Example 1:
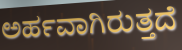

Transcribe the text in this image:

ಅರ್ಹವಾಗಿರುತ್ತದೆ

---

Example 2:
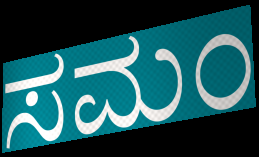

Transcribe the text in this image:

ಸಮಂ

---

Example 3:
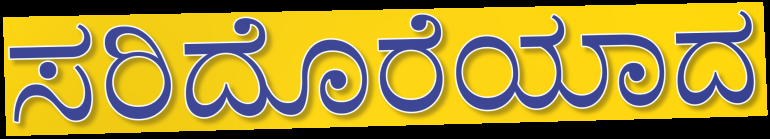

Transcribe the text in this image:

ಸರಿದೊರೆಯಾದ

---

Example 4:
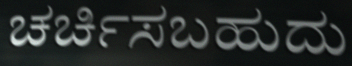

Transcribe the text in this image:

ಚರ್ಚಿಸಬಹುದು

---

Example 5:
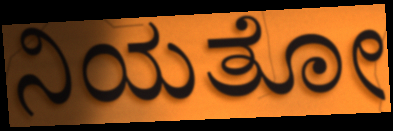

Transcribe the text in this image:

ನಿಯತೋ